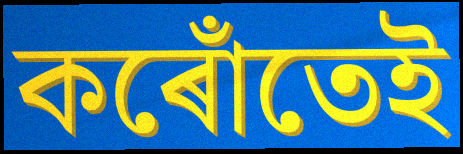
কৰোঁতেই